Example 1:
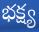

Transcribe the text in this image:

భక్ష్య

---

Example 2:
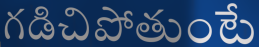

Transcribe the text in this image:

గడిచిపోతుంటే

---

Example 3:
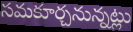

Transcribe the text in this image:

సమకూర్చనున్నట్లు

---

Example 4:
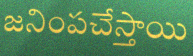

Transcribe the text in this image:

జనింపచేస్తాయి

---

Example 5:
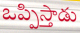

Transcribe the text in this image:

ఒప్పిస్తాడు